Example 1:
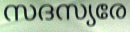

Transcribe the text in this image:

സദസ്യരേ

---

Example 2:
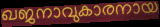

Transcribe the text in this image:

ഖജനാവുകാരനായ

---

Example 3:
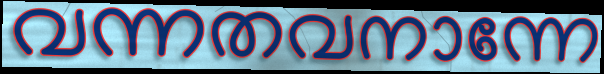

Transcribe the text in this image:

വന്നതവനാന്നേ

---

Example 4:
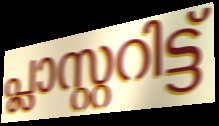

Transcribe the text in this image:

പ്ലാസ്റ്ററിട്ട്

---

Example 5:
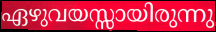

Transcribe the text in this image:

ഏഴുവയസ്സായിരുന്നു